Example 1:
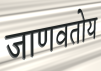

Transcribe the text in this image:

जाणवतोय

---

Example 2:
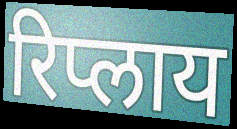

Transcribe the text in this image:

रिप्लाय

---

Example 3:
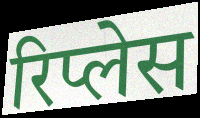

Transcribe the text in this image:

रिप्लेस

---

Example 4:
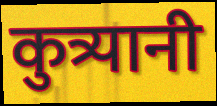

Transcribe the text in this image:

कुत्र्यानी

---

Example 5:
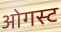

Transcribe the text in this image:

ओगस्ट